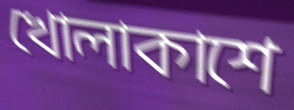
খোলাকাশে